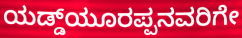
ಯಡ್ಡ್‌ಯೂರಪ್ಪನವರಿಗೇ